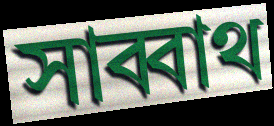
সাব্বাথ